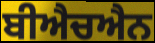
ਬੀਐਚਐਨ